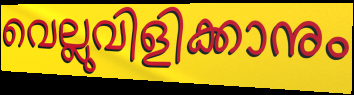
വെല്ലുവിളിക്കാനും